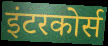
इंटरकोर्स